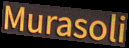
Murasoli